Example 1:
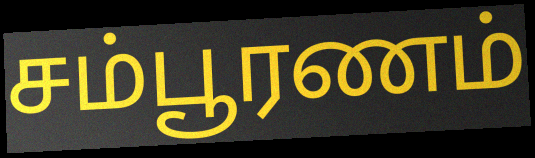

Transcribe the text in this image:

சம்பூரணம்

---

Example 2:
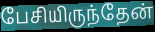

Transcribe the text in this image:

பேசியிருந்தேன்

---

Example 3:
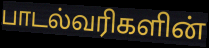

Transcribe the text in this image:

பாடல்வரிகளின்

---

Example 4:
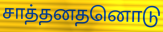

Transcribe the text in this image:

சாத்தனதனொடு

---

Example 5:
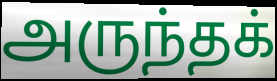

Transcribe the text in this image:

அருந்தக்